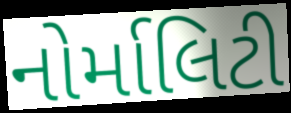
નોર્માલિટી